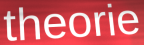
theorie